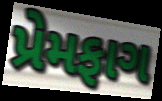
પ્રેમફાગ